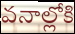
వనాల్లోకి